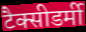
टैक्सीडर्मी